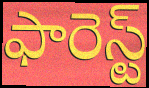
ఫారెస్ట్